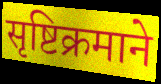
सृष्टिक्रमाने